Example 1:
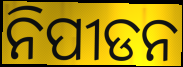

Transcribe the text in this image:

ନିପୀଡନ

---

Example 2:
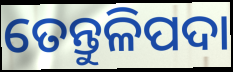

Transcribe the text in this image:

ତେନ୍ତୁଳିପଦା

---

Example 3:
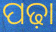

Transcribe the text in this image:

ପଢ଼ା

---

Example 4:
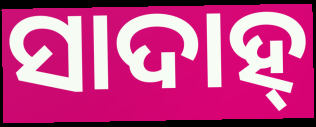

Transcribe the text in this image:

ସାଦାହ୍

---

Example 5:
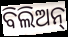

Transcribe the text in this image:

ବିଲିଅନ୍